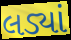
લડ્યાં